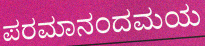
ಪರಮಾನಂದಮಯ